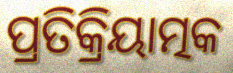
ପ୍ରତିକ୍ରିୟାତ୍ମକ